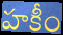
హకీం